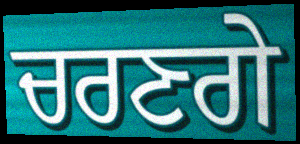
ਚਰਣਗੇ